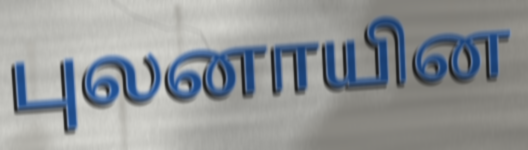
புலனாயின